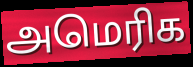
அமெரிக